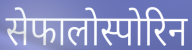
सेफालोस्पोरिन